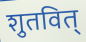
श्रुतवित्